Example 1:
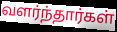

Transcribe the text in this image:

வளர்ந்தார்கள்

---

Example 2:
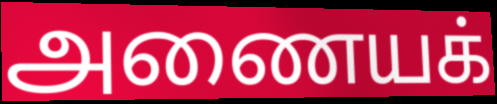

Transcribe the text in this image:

அணையக்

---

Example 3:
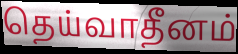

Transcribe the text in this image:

தெய்வாதீனம்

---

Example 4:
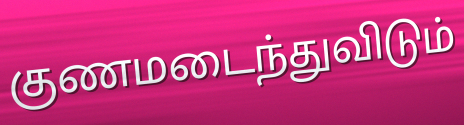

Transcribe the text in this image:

குணமடைந்துவிடும்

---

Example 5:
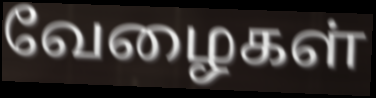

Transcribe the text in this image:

வேழைகள்